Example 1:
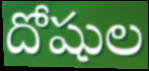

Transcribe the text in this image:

దోషుల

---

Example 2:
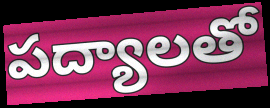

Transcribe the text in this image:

పద్యాలతో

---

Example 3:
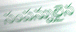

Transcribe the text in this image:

సంపన్నులైన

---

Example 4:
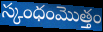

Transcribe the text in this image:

స్కంధంమొత్తం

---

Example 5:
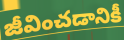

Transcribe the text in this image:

జీవించడానికీ